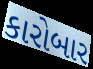
કારોબાર